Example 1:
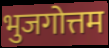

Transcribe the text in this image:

भुजगोत्तम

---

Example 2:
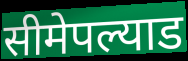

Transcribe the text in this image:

सीमेपल्याड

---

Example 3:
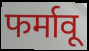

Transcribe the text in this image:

फर्मावू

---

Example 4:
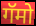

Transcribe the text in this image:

गॅमो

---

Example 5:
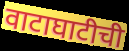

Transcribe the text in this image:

वाटाघाटीची